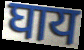
घाय